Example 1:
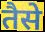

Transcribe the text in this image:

तैसे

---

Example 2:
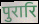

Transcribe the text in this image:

पुरारि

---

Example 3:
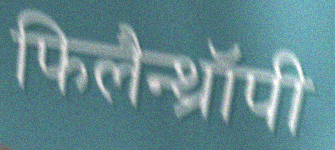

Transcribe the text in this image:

फिलैन्थ्रॉपी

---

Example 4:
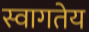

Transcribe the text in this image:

स्वागतेय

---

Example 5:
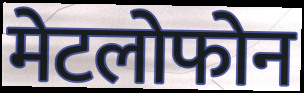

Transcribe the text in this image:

मेटलोफोन